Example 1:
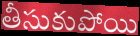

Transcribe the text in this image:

తీసుకుపోయి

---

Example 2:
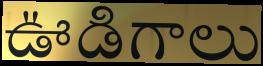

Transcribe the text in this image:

ఊడిగాలు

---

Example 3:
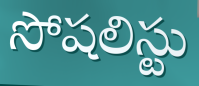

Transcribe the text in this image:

సోషలిస్టు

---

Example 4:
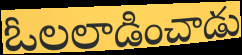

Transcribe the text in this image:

ఓలలాడించాడు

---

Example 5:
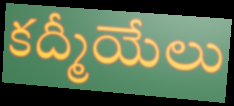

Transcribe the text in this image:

కద్మీయేలు